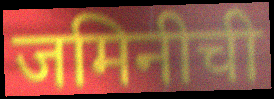
जमिनीची